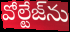
వోల్టేజ్‌ను